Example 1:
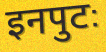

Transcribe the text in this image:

इनपुटः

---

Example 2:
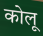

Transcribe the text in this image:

कोलू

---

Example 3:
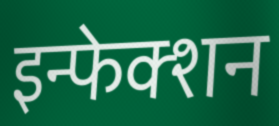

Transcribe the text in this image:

इन्‍फेक्‍शन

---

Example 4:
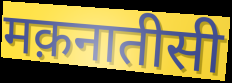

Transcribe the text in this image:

मक़नातीसी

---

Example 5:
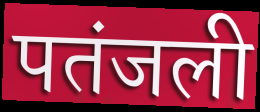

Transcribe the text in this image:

पतंजली